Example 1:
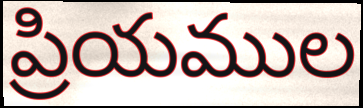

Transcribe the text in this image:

ప్రియముల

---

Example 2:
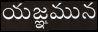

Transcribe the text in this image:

యజ్ఞమున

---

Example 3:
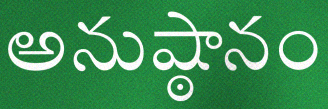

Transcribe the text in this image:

అనుష్ఠానం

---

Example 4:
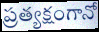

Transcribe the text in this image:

ప్రత్యక్షంగానో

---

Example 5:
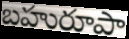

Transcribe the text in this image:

బహురూపా